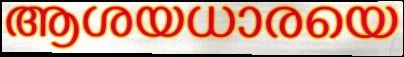
ആശയധാരയെ